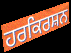
ਹਰਕਿਰਸ਼ਨ